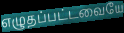
எழுதப்பட்டவையே